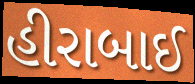
હીરાબાઈ